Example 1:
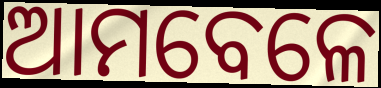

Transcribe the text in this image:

ଆମବେଳେ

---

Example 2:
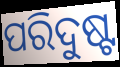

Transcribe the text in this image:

ପରିଦୁଷ୍ଟ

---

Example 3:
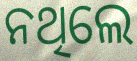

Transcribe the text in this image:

ନଥିଲେ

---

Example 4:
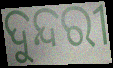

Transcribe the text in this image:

ଦୁନ୍ଦରୀ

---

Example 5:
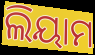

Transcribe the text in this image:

ଲିୟାମ